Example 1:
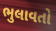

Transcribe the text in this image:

ભુલાવતો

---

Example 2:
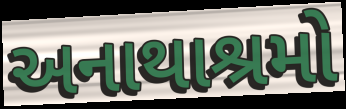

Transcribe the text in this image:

અનાથાશ્રમો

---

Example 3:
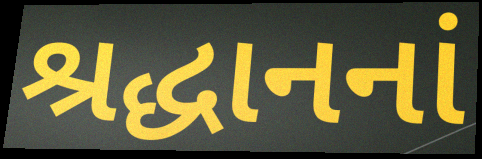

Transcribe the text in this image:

શ્રદ્ધાનનાં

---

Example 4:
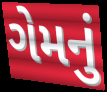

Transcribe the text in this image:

ગેમનું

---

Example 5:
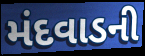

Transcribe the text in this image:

મંદવાડની